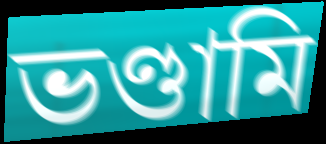
ভণ্ডামি